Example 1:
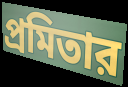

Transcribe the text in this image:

প্রমিতার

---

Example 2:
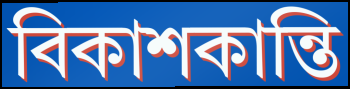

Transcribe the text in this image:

বিকাশকান্তি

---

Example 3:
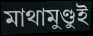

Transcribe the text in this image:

মাথামুণ্ডুই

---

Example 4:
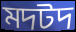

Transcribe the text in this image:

মদটদ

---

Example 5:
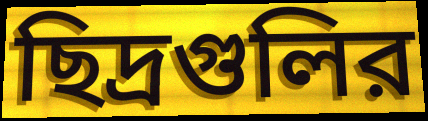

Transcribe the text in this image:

ছিদ্রগুলির